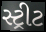
સ્ટ્રીટ